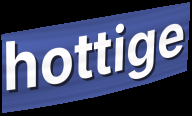
hottige